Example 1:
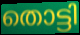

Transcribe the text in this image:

തൊട്ടി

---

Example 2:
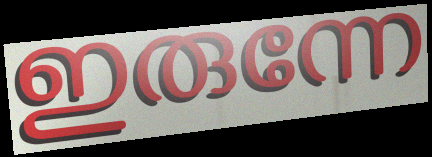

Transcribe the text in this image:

ഇരുന്നേ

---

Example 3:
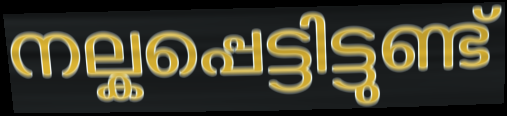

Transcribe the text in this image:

നല്കപ്പെട്ടിട്ടുണ്ട്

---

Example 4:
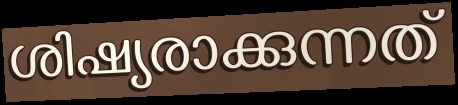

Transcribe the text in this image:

ശിഷ്യരാക്കുന്നത്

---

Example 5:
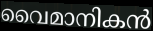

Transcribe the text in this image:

വൈമാനികൻ